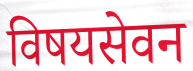
विषयसेवन